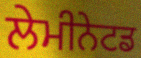
ਲੇਮੀਨੇਟਡ